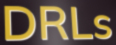
DRLs